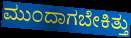
ಮುಂದಾಗಬೇಕಿತ್ತು